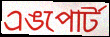
এঙপোর্ট